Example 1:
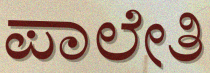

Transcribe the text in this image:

ಪಾಲೇತಿ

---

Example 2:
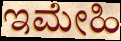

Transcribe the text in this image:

ಇಮೇಹಿ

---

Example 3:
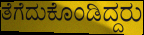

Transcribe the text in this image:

ತೆಗೆದುಕೊಂಡಿದ್ದರು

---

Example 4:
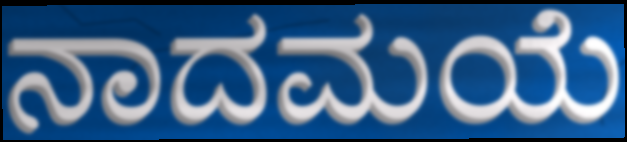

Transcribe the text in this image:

ನಾದಮಯೆ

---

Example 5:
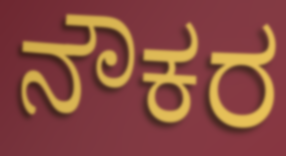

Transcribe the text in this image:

ನೌಕರ